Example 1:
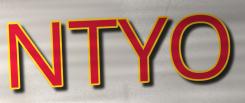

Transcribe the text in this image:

NTYO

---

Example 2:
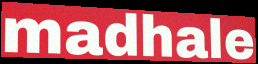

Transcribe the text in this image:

madhale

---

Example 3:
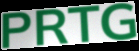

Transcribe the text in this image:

PRTG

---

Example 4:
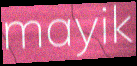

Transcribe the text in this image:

mayik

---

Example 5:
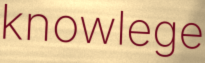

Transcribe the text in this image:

knowlege